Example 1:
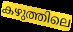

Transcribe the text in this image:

കഴുത്തിലെ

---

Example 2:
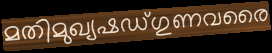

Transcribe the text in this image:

മതിമുഖ്യഷഡ്ഗുണവരൈ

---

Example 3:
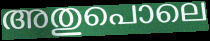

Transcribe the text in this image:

അതുപൊലെ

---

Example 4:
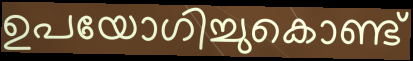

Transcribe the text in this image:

ഉപയോഗിച്ചുകൊണ്ട്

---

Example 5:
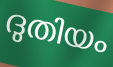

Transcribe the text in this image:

ദുതിയം